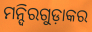
ମନ୍ଦିରଗୁଡ଼ାକର